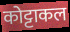
कोट्टाकल